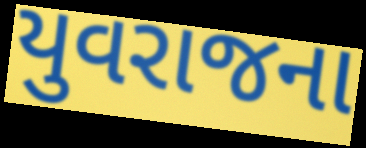
યુવરાજના